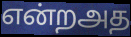
என்றஅத